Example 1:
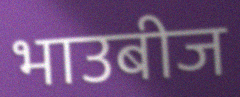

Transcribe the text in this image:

भाउबीज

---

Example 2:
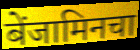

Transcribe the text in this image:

बेंजामिनचा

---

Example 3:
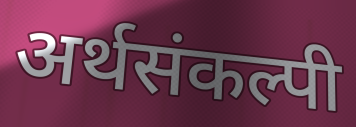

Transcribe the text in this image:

अर्थसंकल्पी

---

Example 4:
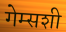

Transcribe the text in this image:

गेम्सशी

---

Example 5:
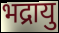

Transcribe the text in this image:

भद्रायु